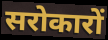
सरोकारों